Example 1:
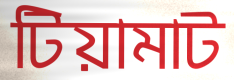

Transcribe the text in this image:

টিয়ামাট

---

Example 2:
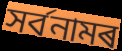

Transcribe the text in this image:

সৰ্বনামৰ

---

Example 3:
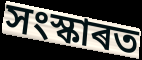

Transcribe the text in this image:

সংস্কাৰত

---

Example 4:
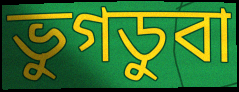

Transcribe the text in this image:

ভুগডুবা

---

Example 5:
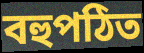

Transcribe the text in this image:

বহুপঠিত